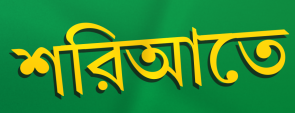
শরিআতে